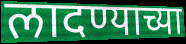
लादण्याच्या